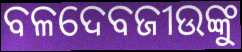
ବଳଦେବଜୀଉଙ୍କୁ